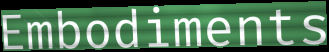
Embodiments